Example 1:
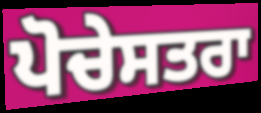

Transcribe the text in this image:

ਪੋਚੇਸਤਰਾ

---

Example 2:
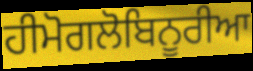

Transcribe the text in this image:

ਹੀਮੋਗਲੋਬਿਨੂਰੀਆ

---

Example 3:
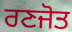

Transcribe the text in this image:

ਰਣਜੋਤ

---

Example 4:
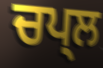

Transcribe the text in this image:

ਚਪ੍ਲ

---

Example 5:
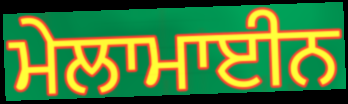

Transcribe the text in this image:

ਮੇਲਾਮਾਈਨ